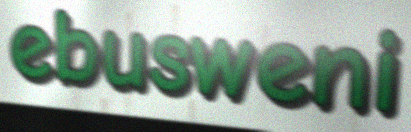
ebusweni